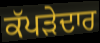
ਕੱਪੜੇਦਾਰ